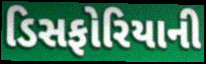
ડિસફોરિયાની